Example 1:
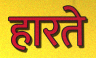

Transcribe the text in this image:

हारते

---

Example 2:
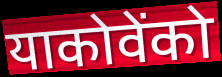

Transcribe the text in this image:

याकोवेंको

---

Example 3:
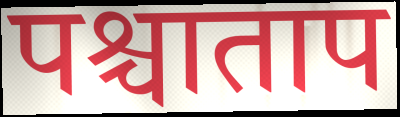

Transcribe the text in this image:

पश्चाताप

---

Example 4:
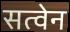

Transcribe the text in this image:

सत्वेन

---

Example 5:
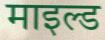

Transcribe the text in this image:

माइल्ड